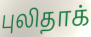
புலிதாக்